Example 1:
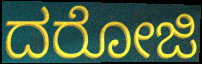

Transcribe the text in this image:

ದರೋಜಿ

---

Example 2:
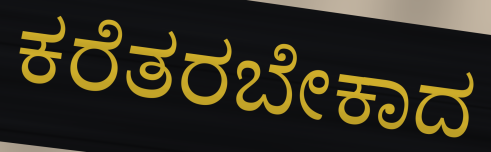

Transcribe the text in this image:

ಕರೆತರಬೇಕಾದ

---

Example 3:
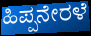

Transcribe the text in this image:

ಹಿಪ್ಪನೇರಳೆ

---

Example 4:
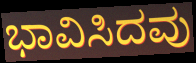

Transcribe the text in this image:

ಭಾವಿಸಿದವು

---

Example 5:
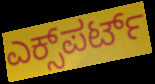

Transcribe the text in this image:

ಎಕ್ಸ್‌ಪರ್ಟ್